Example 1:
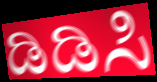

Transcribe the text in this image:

ಡಿಡಿಸಿ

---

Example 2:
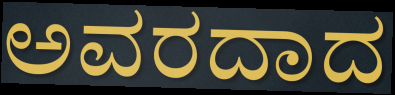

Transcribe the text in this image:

ಅವರದಾದ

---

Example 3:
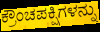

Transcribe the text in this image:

ಕ್ರೌಂಚಪಕ್ಷಿಗಳನ್ನು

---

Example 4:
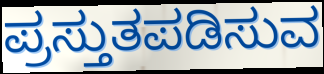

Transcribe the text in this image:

ಪ್ರಸ್ತುತಪಡಿಸುವ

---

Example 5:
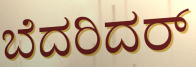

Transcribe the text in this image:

ಬೆದರಿದರ್